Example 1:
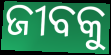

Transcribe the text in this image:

ଜୀବକୁ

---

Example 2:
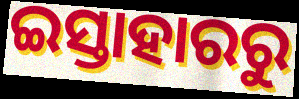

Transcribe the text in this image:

ଇସ୍ତାହାରରୁ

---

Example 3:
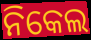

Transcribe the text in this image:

ନିକେଲ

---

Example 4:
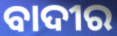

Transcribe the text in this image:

ବାଦୀର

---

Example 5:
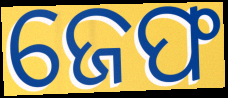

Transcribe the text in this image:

ଜେଫ